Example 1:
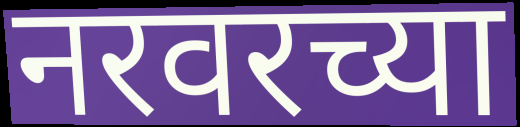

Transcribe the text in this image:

नरवरच्या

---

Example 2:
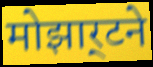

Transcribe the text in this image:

मोझार्टने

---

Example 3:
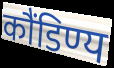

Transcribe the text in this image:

कौंडिण्य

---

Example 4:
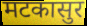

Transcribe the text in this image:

मटकासुर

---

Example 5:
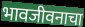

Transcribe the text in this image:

भावजीवनाचा